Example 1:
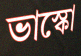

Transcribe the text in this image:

ভাস্কো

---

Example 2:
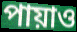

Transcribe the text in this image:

পায়াও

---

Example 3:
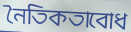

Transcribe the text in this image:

নৈতিকতাবোধ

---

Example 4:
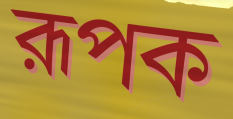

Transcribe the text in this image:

রূপক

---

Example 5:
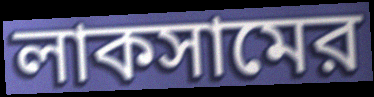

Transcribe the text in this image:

লাকসামের